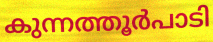
കുന്നത്തൂർപാടി